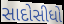
સાદોસીધો